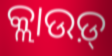
କ୍ଲାଉଡ଼୍